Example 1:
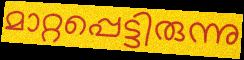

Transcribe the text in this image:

മാറ്റപ്പെട്ടിരുന്നു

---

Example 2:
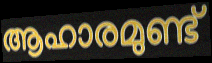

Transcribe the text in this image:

ആഹാരമുണ്ട്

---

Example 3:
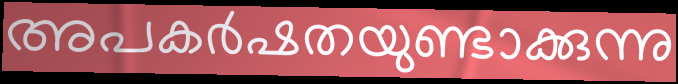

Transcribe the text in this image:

അപകർഷതയുണ്ടാക്കുന്നു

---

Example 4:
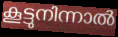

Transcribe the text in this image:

കൂട്ടുനിന്നാൽ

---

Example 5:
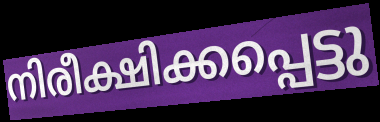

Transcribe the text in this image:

നിരീക്ഷിക്കപ്പെട്ടു